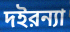
দইরন্যা